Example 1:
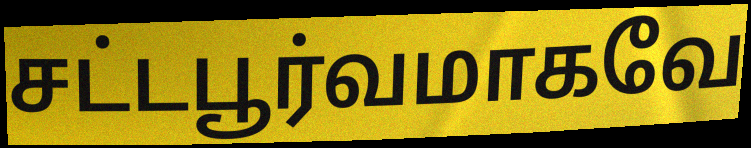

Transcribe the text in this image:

சட்டபூர்வமாகவே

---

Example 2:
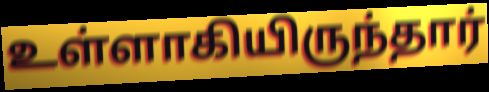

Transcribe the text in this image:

உள்ளாகியிருந்தார்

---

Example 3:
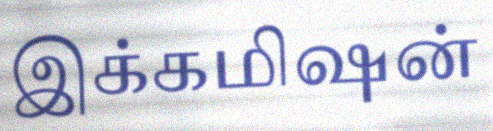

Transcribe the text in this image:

இக்கமிஷன்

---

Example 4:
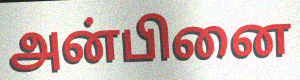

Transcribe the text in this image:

அன்பினை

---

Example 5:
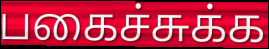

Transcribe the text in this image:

பகைச்சுக்க